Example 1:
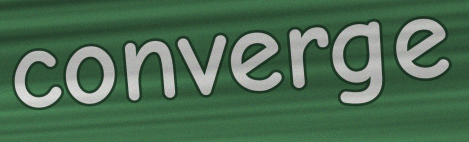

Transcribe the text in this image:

converge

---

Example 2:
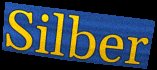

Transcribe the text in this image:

Silber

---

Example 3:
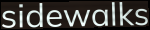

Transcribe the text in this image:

sidewalks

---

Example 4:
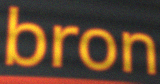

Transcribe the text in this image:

bron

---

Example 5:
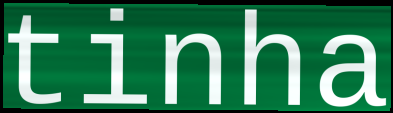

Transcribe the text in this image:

tinha